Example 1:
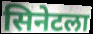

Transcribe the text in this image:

सिनेटला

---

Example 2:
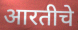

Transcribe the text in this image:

आरतीचे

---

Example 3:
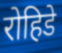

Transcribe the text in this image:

रोहिडे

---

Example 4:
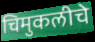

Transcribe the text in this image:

चिमुकलीचे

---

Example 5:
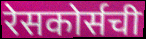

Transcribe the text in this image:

रेसकोर्सची